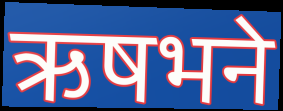
ऋषभने